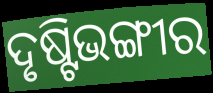
ଦୃଷ୍ଟିଭଙ୍ଗୀର